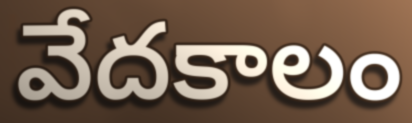
వేదకాలం